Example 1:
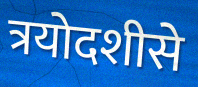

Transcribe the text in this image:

त्रयोदशीसे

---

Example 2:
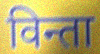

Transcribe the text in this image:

विन्ता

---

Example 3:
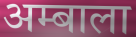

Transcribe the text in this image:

अम्बाला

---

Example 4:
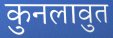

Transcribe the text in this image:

कुनलावुत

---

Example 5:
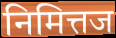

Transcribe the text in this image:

निमित्तज